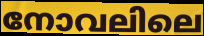
നോവലിലെ